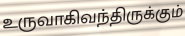
உருவாகிவந்திருக்கும்